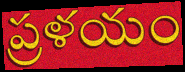
ప్రళయం